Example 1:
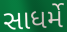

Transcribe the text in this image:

સાધર્મે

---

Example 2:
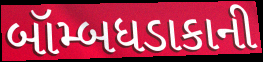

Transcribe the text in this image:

બૉમ્બધડાકાની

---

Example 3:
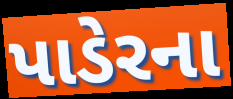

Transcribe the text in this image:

પાડેરના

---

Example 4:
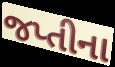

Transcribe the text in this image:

જપ્તીના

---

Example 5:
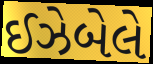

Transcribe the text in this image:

ઈઝેબેલે